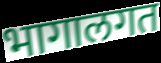
भागालगत